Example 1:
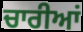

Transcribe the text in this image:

ਚਾਰੀਆਂ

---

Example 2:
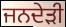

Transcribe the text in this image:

ਜਨਦੇੜੀ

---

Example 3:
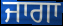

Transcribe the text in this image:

ਜਾਗਾ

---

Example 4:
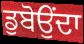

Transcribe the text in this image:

ਡੁਬੋਉਂਦਾ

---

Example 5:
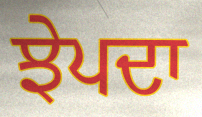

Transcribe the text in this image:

ਝੇਪਦਾ